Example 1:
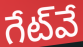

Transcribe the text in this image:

గేట్‌వే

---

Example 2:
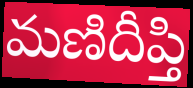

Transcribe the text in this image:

మణిదీప్తి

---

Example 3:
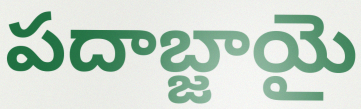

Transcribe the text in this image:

పదాబ్జాయై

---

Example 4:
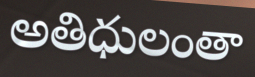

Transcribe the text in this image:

అతిధులంతా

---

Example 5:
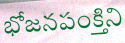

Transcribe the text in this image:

భోజనపంక్తిని